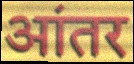
आंतर